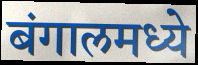
बंगालमध्ये